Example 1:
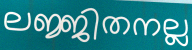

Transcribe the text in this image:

ലജ്ജിതനല്ല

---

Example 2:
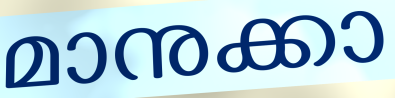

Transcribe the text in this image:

മാനുക്കാ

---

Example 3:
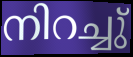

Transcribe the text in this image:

നിറച്ചു്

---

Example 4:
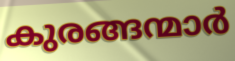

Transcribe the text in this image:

കുരങ്ങന്മാർ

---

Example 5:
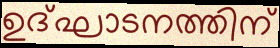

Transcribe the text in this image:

ഉദ്ഘാടനത്തിന്